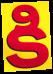
కి